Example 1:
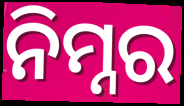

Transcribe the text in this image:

ନିମ୍ନର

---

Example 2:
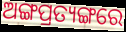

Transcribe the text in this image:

ଅଙ୍ଗପ୍ରତ୍ୟଙ୍ଗରେ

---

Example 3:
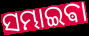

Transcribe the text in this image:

ସମ୍ଭାଇଵା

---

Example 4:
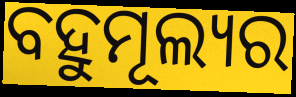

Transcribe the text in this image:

ବହୁମୂଲ୍ୟର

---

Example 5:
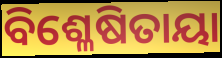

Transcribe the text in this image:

ବିଶ୍ଳେଷିତାୟା